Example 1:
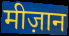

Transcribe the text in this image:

मीज़ान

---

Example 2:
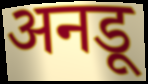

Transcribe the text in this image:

अनडू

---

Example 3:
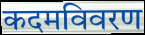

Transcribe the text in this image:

कदमविवरण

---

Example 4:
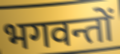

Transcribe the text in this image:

भगवन्तों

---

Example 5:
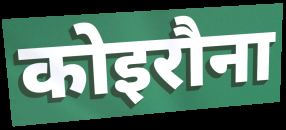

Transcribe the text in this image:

कोइरौना